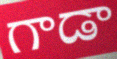
గాడా